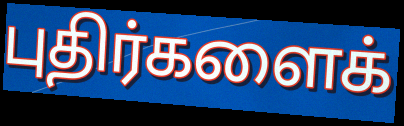
புதிர்களைக்